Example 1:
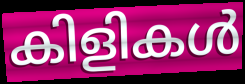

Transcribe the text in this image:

കിളികൾ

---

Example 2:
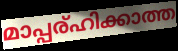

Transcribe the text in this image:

മാപ്പര്ഹിക്കാത്ത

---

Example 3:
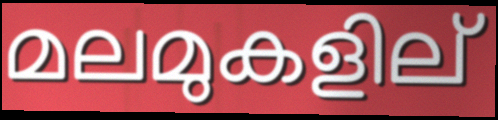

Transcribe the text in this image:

മലമുകളില്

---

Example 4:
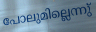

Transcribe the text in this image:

പോലുമില്ലെന്നു്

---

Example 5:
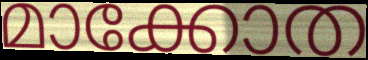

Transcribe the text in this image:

മാക്കോത